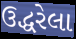
ઉદ્ધરેલા